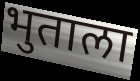
भुताला